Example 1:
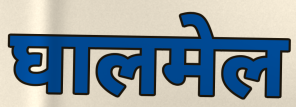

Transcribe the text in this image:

घालमेल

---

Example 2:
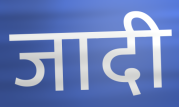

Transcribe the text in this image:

जादी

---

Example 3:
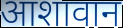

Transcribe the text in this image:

आशावान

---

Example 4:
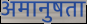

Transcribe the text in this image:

अमानुषता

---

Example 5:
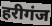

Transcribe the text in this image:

हरीगंज